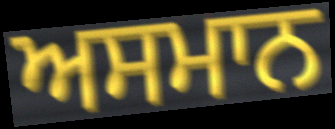
ਅਸਮਾਨ